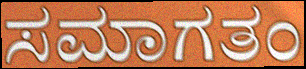
ಸಮಾಗತಂ